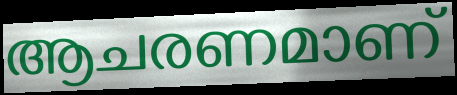
ആചരണമാണ്